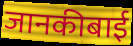
जानकीबाई